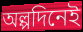
অল্পদিনেই